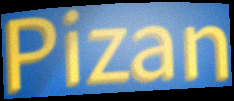
Pizan